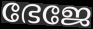
ഭേജേ